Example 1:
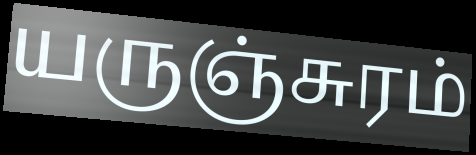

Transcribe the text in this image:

யருஞ்சுரம்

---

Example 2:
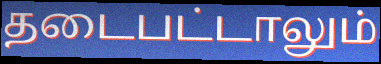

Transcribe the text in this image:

தடைபட்டாலும்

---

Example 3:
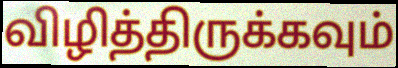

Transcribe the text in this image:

விழித்திருக்கவும்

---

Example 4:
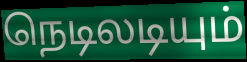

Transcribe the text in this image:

நெடிலடியும்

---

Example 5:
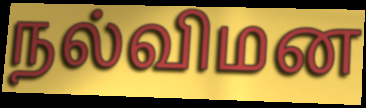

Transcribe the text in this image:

நல்விமன